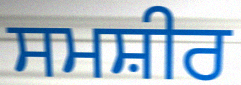
ਸਮਸ਼ੀਰ